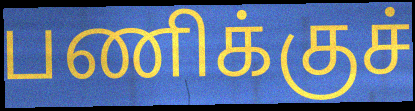
பணிக்குச்